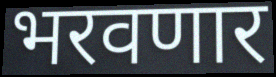
भरवणार